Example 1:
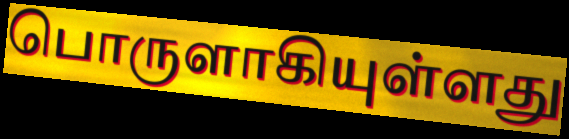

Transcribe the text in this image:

பொருளாகியுள்ளது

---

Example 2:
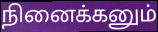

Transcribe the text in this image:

நினைக்கனும்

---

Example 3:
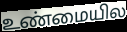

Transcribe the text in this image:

உண்மையில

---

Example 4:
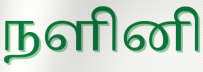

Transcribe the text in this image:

நளினி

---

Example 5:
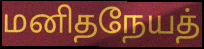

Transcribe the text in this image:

மனிதநேயத்